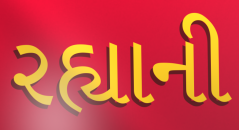
રહ્યાની